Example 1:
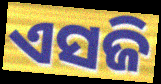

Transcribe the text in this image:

ଏସଜି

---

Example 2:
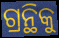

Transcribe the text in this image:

ଗ୍ରନ୍ଥିକୁ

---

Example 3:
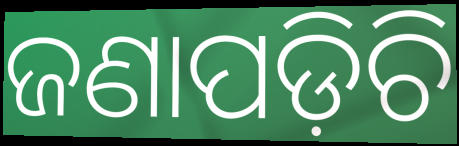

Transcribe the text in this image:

ଜଣାପଡ଼ିଚି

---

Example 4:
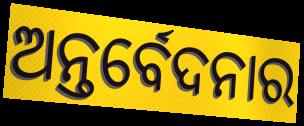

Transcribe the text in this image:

ଅନ୍ତର୍ବେଦନାର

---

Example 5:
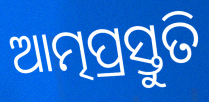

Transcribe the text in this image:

ଆତ୍ମପ୍ରସ୍ତୁତି